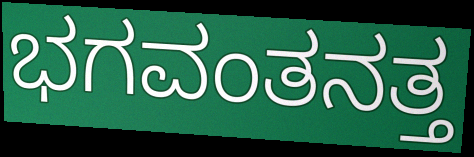
ಭಗವಂತನತ್ತ